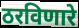
ठरविणारे